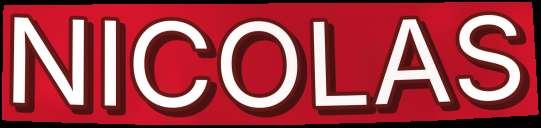
NICOLAS